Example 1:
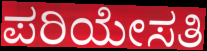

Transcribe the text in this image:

ಪರಿಯೇಸತಿ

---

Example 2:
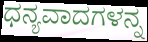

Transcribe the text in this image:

ಧನ್ಯವಾದಗಳನ್ನ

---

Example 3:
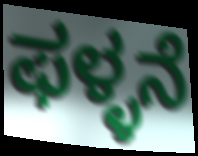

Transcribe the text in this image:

ಫಳ್ಳನೆ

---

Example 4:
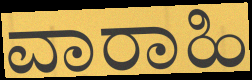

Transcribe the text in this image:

ವಾರಾಹಿ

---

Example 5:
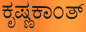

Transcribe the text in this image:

ಕೃಷ್ಣಕಾಂತ್